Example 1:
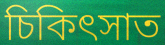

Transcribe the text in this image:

চিকিৎসাত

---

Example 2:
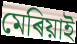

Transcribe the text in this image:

মেৰিয়াই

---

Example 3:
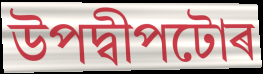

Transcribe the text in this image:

উপদ্বীপটোৰ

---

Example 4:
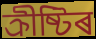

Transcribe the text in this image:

ক্ৰীষ্টিৰ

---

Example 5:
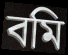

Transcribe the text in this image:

বমি